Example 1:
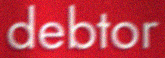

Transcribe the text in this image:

debtor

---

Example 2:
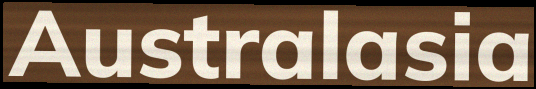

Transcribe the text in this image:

Australasia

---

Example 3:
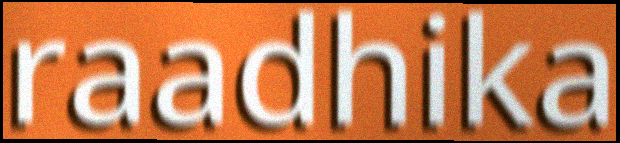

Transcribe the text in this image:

raadhika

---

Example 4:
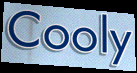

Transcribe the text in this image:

Cooly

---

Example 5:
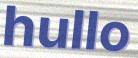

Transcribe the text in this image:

hullo